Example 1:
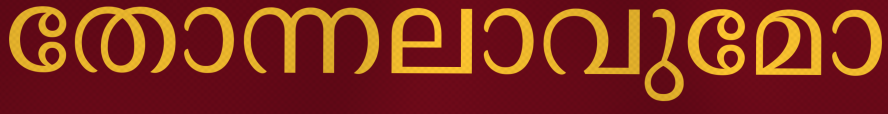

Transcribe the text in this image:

തോന്നലാവുമോ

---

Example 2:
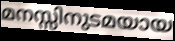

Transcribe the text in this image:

മനസ്സിനുടമയായ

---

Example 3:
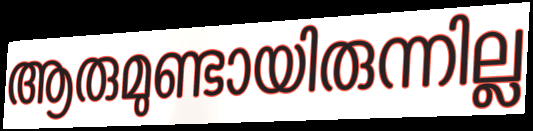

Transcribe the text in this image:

ആരുമുണ്ടായിരുന്നില്ല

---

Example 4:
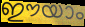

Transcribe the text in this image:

ഈയാം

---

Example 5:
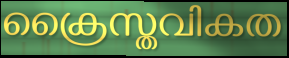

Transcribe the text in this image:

ക്രൈസ്തവികത